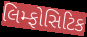
લિમ્ફોસિટિક